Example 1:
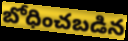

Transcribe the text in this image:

బోధించబడిన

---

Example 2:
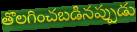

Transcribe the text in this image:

తొలగించబడినప్పుడు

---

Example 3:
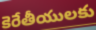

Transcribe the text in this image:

కెరేతీయులకు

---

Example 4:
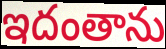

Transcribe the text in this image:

ఇదంతాను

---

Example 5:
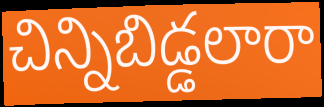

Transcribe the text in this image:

చిన్నిబిడ్డలారా